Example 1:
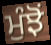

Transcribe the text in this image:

ਮੁੰਝੋਂ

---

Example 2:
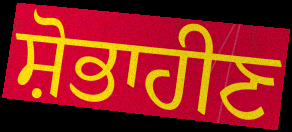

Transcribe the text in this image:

ਸ਼ੋਭਾਹੀਣ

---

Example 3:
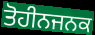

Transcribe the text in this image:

ਤੋਹੀਨਜਨਕ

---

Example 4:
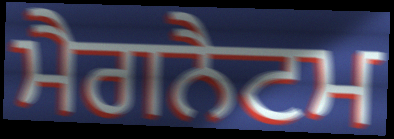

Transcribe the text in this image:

ਮੈਗਨੈਟਮ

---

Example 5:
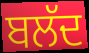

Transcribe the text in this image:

ਬਲੱਦ